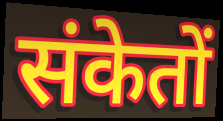
संकेतों